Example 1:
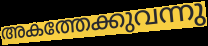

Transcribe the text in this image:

അകത്തേക്കുവന്നു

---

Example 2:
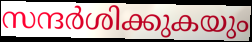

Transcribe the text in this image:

സന്ദർശിക്കുകയും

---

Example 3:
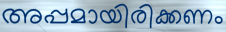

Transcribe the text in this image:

അപ്പമായിരിക്കണം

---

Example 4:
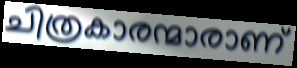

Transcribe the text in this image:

ചിത്രകാരന്മാരാണ്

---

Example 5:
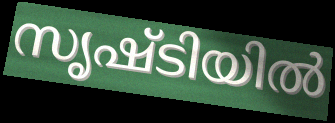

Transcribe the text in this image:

സൃഷ്ടിയിൽ